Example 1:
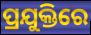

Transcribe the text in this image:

ପ୍ରଯୁକ୍ତିରେ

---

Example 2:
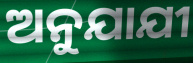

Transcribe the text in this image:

ଅନୁଯାଯୀ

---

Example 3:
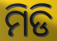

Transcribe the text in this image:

ମିଡି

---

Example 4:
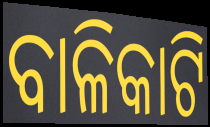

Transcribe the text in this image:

ବାଳିକାଟି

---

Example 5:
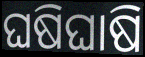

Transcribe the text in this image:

ଘଷିଘାଷି